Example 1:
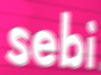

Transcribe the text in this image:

sebi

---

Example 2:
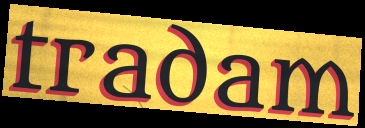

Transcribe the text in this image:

tradam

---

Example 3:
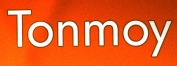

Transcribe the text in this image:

Tonmoy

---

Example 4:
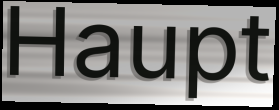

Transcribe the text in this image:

Haupt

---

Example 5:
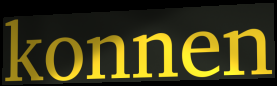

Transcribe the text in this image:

konnen